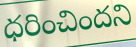
ధరించిందని